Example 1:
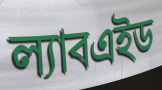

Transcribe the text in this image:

ল্যাবএইড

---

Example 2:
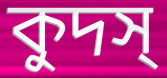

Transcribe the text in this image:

কুদস্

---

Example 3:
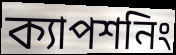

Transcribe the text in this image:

ক্যাপশনিং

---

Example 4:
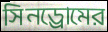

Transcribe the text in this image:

সিনড্রোমের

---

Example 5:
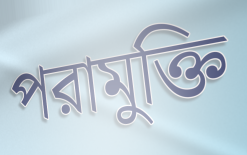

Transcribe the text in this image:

পরামুক্তি